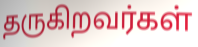
தருகிறவர்கள்